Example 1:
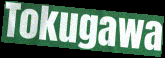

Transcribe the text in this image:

Tokugawa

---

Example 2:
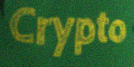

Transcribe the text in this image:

Crypto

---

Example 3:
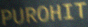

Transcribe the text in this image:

PUROHIT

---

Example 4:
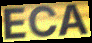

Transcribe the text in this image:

ECA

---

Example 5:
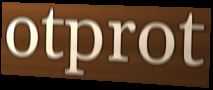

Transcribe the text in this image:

otprot